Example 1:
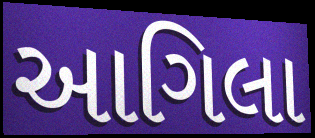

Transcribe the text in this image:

આગિલા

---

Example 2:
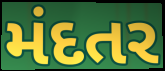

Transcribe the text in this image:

મંદતર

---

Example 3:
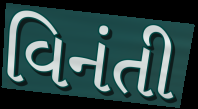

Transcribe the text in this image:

વિનંતી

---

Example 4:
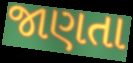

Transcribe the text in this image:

જાણતા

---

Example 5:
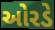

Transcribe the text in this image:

ઓરડે